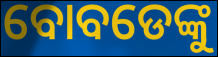
ବୋବଡେଙ୍କୁ